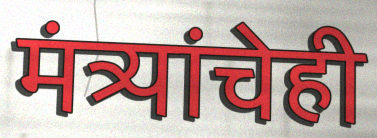
मंत्र्यांचेही